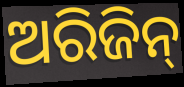
ଅରିଜିନ୍